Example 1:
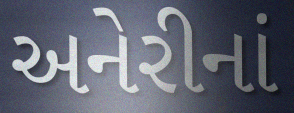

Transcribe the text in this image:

અનેરીનાં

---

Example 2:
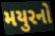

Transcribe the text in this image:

મયુરનો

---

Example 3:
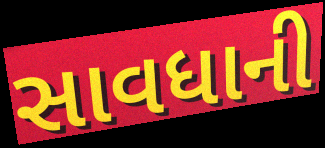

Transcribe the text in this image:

સાવધાની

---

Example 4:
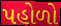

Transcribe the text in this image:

પહોળો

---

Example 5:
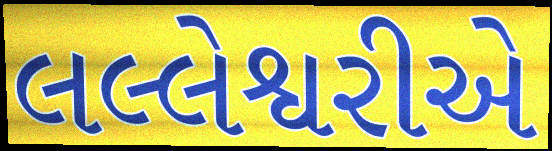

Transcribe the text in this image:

લલ્લેશ્વરીએ